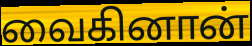
வைகினான்